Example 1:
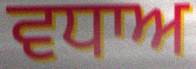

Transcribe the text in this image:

ਵਧਾਅ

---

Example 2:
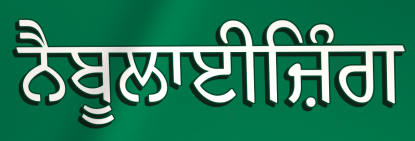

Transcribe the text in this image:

ਨੈਬੂਲਾਈਜ਼ਿੰਗ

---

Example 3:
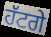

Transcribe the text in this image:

ਹੱਟਗੇ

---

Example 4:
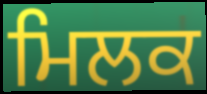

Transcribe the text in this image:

ਮਿਲਕ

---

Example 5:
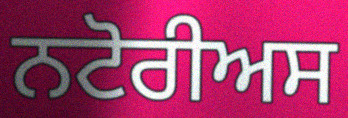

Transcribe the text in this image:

ਨਟੋਰੀਅਸ